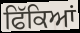
ਫਿੱਕਿਆਂ